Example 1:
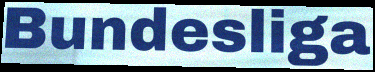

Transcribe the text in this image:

Bundesliga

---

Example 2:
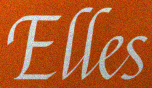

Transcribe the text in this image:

Elles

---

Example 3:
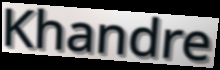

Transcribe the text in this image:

Khandre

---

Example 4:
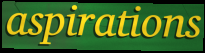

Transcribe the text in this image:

aspirations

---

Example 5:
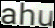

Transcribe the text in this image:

ahu